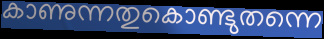
കാണുന്നതുകൊണ്ടുതന്നെ